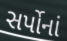
સર્પોનાં